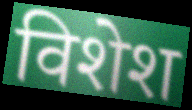
विशेश